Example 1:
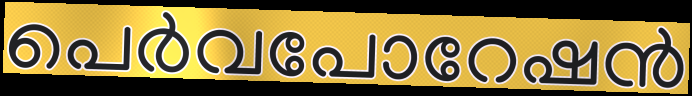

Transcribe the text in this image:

പെർവപോറേഷൻ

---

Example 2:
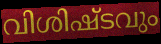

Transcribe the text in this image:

വിശിഷ്ടവും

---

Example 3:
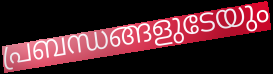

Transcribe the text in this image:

പ്രബന്ധങ്ങളുടേയും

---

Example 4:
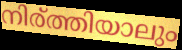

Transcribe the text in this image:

നിര്ത്തിയാലും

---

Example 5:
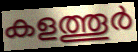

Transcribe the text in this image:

കളത്തൂർ